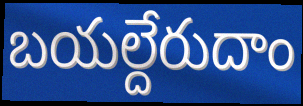
బయల్దేరుదాం